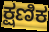
ಕ್ಷಣಿಕ